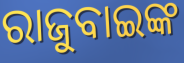
ରାଜୁବାଇଙ୍କ